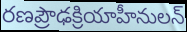
రణప్రౌఢక్రియాహీనులన్